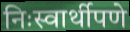
निःस्वार्थीपणे